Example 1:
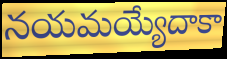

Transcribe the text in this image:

నయమయ్యేదాకా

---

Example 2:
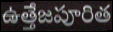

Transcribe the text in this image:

ఉత్తేజపూరిత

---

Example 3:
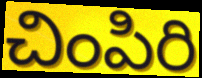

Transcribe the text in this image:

చింపిరి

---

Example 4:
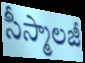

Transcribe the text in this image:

సీస్మాలజీ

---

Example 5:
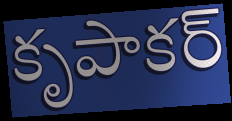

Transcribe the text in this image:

కృపాకర్